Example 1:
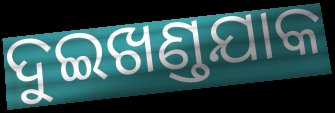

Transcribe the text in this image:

ଦୁଇଖଣ୍ଡଯାକ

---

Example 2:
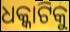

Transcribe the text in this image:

ଧକ୍କାଟିକୁ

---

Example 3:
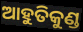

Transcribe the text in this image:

ଆହୁତିକୁଣ୍ଡ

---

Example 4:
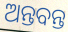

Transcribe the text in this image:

ଅନ୍ତବନ୍ତ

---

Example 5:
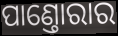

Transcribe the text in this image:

ପାଣ୍ତୋରାର